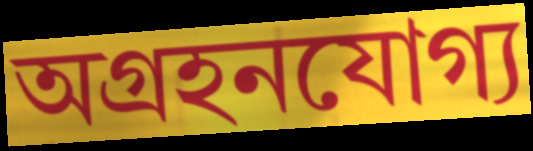
অগ্রহনযোগ্য